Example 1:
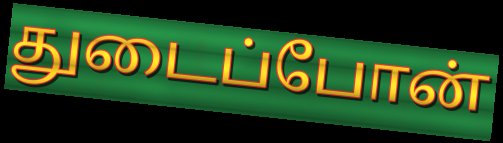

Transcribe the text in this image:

துடைப்போன்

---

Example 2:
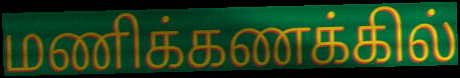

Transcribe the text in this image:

மணிக்கணக்கில்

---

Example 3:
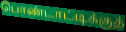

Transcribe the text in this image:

பொண்டாட்டிக்குத்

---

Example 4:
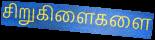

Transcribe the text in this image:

சிறுகிளைகளை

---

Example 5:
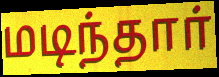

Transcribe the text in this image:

மடிந்தார்